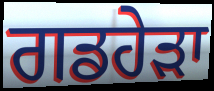
ਗਡਹੇੜਾ